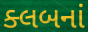
ક્લબનાં